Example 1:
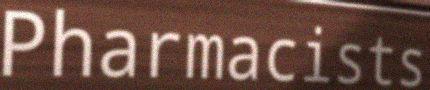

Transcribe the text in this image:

Pharmacists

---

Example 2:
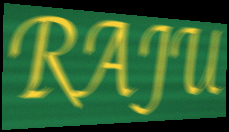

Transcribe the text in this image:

RAJU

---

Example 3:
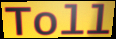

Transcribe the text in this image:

Toll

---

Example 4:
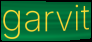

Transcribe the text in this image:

garvit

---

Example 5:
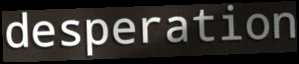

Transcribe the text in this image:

desperation